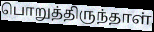
பொறுத்திருந்தாள்